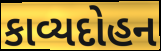
કાવ્યદોહન